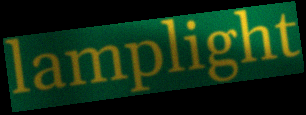
lamplight